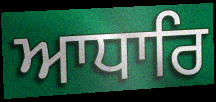
ਆਧਾਰਿ